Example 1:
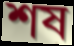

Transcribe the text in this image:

শষ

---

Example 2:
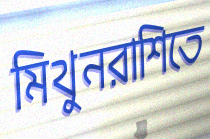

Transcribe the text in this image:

মিথুনরাশিতে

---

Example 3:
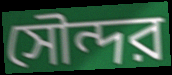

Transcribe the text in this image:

সৌন্দর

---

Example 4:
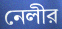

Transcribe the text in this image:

নেলীর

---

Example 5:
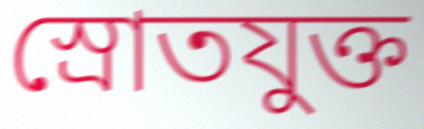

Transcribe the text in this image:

স্রোতযুক্ত